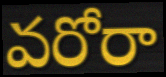
వరోరా